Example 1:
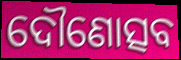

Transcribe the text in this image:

ଦୌଣୋତ୍ସବ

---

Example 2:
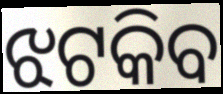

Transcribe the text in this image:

ଝଟକିବ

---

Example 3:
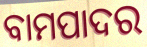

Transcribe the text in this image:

ବାମପାଦର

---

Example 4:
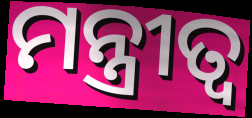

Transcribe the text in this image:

ମନ୍ତ୍ରୀତ୍ୱ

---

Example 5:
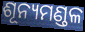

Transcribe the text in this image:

ଶୂନ୍ୟମଣ୍ଡଳ